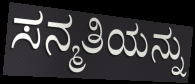
ಸನ್ಮತಿಯನ್ನು